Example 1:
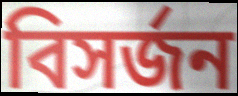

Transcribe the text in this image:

বিসৰ্জন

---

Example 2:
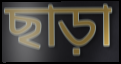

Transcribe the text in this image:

ছাড়া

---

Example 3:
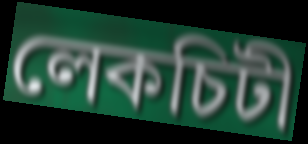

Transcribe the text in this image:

লেকচিটী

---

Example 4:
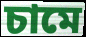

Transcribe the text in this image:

চামে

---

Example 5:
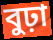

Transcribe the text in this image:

বুঢ়া